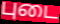
புடை